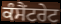
ਕੰਸੈਂਟਰੇਟ